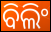
ବିଲିଂ